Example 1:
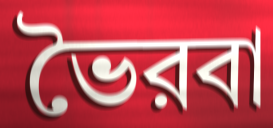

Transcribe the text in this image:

ভৈরবা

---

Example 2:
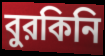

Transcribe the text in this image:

বুরকিনি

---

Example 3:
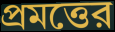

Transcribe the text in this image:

প্রমত্তের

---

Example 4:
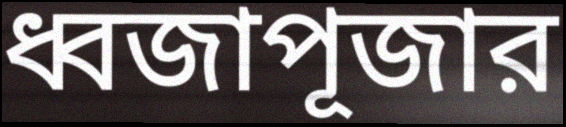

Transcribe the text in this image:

ধ্বজাপূজার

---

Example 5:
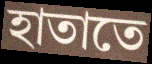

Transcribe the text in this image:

হাতাতে